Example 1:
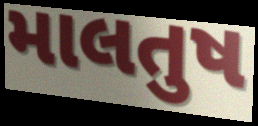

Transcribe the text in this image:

માલતુષ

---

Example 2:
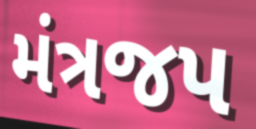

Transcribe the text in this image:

મંત્રજપ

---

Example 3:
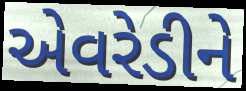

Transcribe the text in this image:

એવરેડીને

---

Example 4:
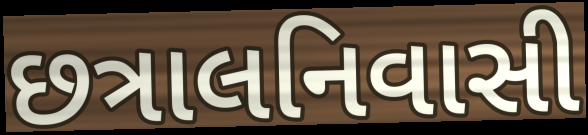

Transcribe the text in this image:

છત્રાલનિવાસી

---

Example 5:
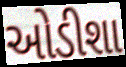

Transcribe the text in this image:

ઓડીશા